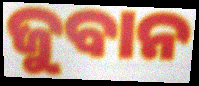
ଜୁବାନ